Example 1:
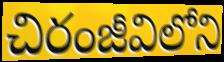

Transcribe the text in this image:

చిరంజీవిలోని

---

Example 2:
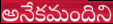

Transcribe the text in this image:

అనేకమందిని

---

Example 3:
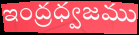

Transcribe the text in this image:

ఇంద్రధ్వజము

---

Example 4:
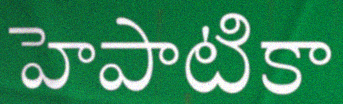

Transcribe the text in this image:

హెపాటికా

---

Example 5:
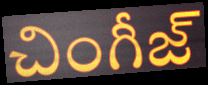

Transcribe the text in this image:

చింగీజ్